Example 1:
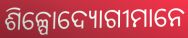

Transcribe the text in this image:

ଶିଳ୍ପୋଦ୍ୟୋଗୀମାନେ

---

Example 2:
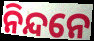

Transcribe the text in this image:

ନିନ୍ଦନେ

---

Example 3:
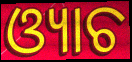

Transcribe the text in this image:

ଓ୍ୟାଚ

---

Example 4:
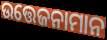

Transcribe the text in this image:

ଉତ୍ତେଜନାମାନ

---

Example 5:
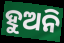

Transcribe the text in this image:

ହୁଅନି